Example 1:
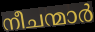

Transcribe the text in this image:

നീചന്മാർ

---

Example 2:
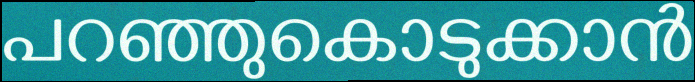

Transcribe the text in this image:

പറഞ്ഞുകൊടുക്കാൻ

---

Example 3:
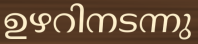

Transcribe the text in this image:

ഉഴറിനടന്നു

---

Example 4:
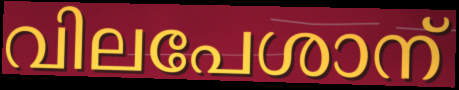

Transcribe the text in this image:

വിലപേശാന്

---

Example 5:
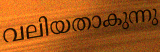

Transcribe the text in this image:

വലിയതാകുന്നു